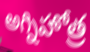
అగ్నిహోత్ర